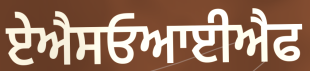
ਏਐਸਓਆਈਐਫ